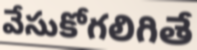
వేసుకోగలిగితే